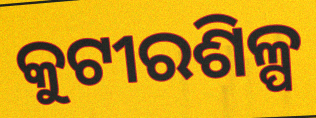
କୁଟୀରଶିଳ୍ପ